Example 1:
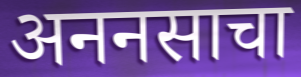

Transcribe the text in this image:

अननसाचा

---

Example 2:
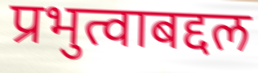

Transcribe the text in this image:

प्रभुत्वाबद्दल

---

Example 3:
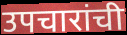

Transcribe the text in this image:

उपचारांची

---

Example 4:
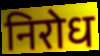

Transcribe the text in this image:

निरोध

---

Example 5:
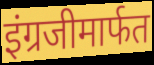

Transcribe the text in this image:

इंग्रजीमार्फत